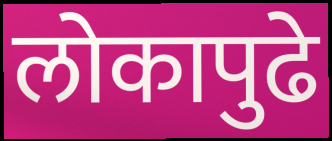
लोकापुढे